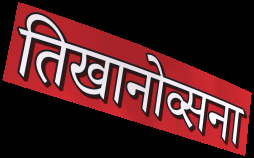
तिखानोव्सना